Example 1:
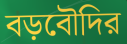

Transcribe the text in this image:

বড়বৌদির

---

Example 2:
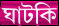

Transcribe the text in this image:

ঘাটকি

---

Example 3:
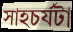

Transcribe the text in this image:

সাহচর্যটা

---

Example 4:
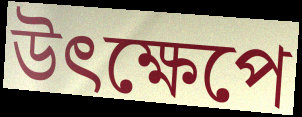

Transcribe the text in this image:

উৎক্ষেপে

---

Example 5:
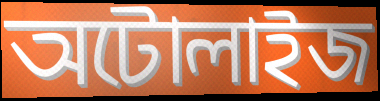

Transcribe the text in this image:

অটোলাইজ